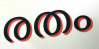
രതം